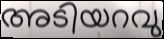
അടിയറവു